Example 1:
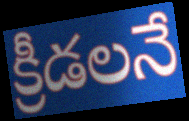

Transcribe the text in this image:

క్రీడలనే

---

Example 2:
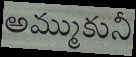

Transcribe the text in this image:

అమ్ముకునీ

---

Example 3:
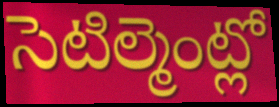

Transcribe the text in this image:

సెటిల్మెంట్లో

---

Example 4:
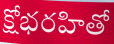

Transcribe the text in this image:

క్షోభరహితో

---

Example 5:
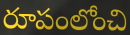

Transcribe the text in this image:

రూపంలోంచి